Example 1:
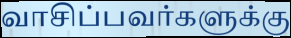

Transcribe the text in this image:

வாசிப்பவர்களுக்கு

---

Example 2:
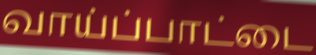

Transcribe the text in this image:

வாய்ப்பாட்டை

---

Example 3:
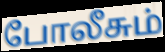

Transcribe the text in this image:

போலீசும்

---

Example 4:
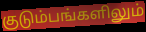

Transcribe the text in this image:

குடும்பங்களிலும்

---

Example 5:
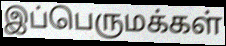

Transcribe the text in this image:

இப்பெருமக்கள்